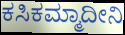
ಕಸಿಕಮ್ಮಾದೀನಿ